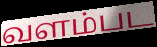
வளம்பட